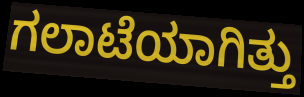
ಗಲಾಟೆಯಾಗಿತ್ತು